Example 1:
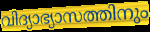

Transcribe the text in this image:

വിദ്യാഭ്യാസത്തിനും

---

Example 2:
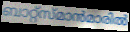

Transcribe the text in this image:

ബാറ്റ്സ്മാൻമാരിൽ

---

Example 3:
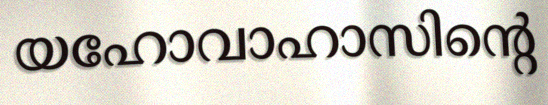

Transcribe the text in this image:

യഹോവാഹാസിന്റെ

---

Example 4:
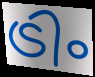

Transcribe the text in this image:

ട്രിം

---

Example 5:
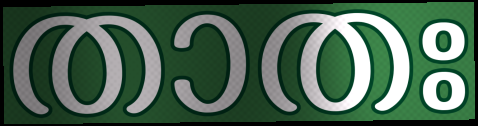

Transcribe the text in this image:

താതഃ